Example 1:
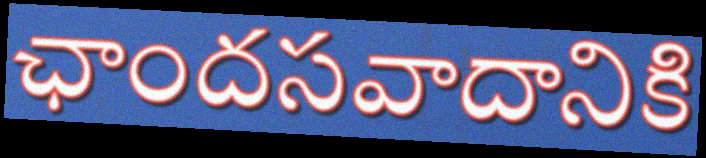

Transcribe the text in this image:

ఛాందసవాదానికి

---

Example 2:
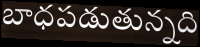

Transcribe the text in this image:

బాధపడుతున్నది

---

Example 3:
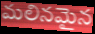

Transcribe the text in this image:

మలినమైన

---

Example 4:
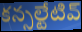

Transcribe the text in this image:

కన్సల్టేటివ్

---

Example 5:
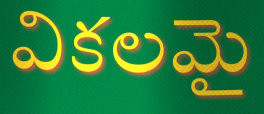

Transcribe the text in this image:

వికలమై